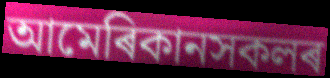
আমেৰিকানসকলৰ